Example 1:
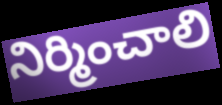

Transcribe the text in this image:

నిర్మించాలి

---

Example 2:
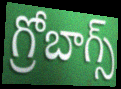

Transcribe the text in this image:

గ్రోబాగ్స్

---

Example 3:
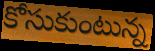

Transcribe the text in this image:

కోసుకుంటున్న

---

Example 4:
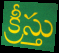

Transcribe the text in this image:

క్రీస్తు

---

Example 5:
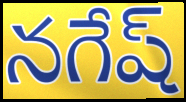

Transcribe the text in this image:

నగేష్